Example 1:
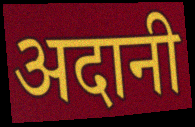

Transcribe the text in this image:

अदानी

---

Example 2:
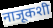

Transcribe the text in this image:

नाजूकशी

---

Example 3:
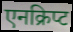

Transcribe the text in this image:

एनक्रिप्ट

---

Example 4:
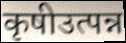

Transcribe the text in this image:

कृषीउत्पन्न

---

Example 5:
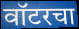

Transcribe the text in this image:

वॉटरचा